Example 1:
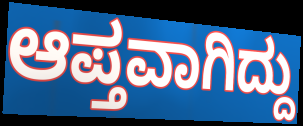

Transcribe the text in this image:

ಆಪ್ತವಾಗಿದ್ದು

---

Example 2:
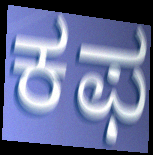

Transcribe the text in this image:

ಕಫ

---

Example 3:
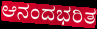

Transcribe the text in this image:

ಆನಂದಭರಿತ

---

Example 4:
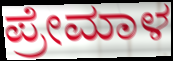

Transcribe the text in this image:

ಪ್ರೇಮಾಳ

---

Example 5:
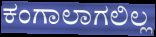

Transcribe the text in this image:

ಕಂಗಾಲಾಗಲಿಲ್ಲ